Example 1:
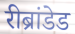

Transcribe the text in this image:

रीब्रांडेड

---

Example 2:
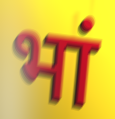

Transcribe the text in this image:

भां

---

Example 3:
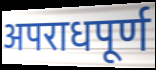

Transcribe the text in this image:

अपराधपूर्ण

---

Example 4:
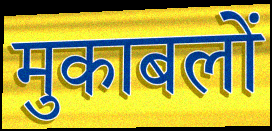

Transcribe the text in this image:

मुकाबलों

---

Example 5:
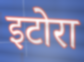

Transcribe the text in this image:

इटोरा